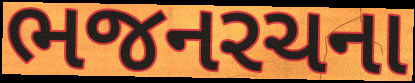
ભજનરચના